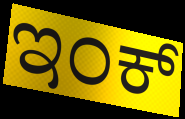
ಇಂಕ್